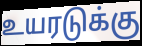
உயரடுக்கு